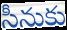
సీనుకు